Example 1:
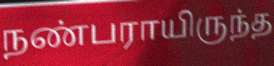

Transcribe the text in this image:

நண்பராயிருந்த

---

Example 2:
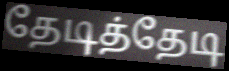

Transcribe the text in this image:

தேடித்தேடி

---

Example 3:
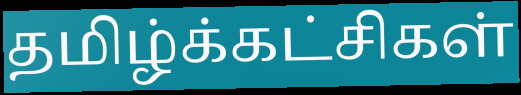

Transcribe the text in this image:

தமிழ்க்கட்சிகள்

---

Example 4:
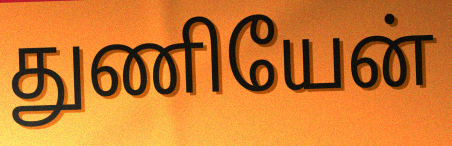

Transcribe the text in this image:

துணியேன்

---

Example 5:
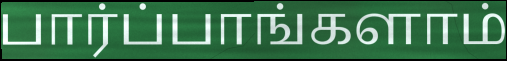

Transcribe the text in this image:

பார்ப்பாங்களாம்